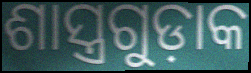
ଶାସ୍ତ୍ରଗୁଡ଼ାକ